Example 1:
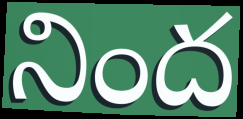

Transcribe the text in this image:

నింద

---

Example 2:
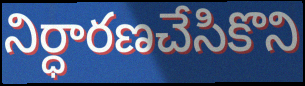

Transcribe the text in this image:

నిర్ధారణచేసికొని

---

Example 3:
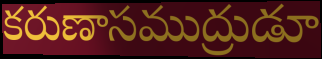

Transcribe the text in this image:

కరుణాసముద్రుడూ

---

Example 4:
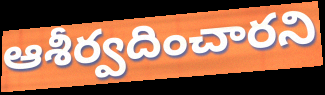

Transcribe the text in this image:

ఆశీర్వదించారని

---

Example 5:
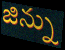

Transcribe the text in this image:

జిన్ను